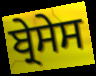
ਬ੍ਰੇਸੇਸ